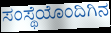
ಸಂಸ್ಥೆಯೊಂದಿಗಿನ